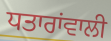
ਧਤਾਰਾਂਵਾਲੀ